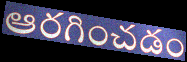
ఆరగించడం